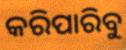
କରିପାରିବୁ